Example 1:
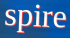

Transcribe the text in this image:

spire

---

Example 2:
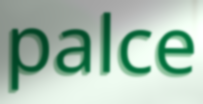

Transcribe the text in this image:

palce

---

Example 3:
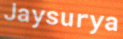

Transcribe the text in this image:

Jaysurya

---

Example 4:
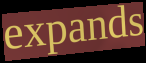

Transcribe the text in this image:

expands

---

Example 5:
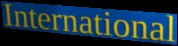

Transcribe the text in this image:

International